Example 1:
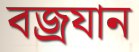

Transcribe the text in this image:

বজ্রযান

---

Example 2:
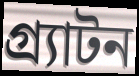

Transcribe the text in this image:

গ্র্যাটন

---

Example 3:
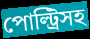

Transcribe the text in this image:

পোল্ট্রিসহ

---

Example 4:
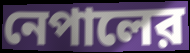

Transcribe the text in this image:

নেপালের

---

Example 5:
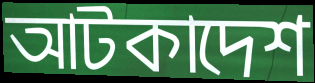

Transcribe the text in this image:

আটকাদেশ